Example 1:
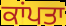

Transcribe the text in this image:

ਕਾਂਪਤਾ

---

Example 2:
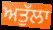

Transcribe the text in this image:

ਅਤੁੱਲਾ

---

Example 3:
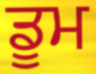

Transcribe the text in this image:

ਡੂਮ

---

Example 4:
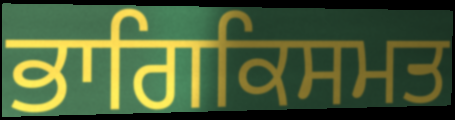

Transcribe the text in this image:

ਭਾਗਿਕਿਸਮਤ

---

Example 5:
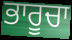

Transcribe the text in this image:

ਭਾਰੂਚਾ